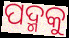
ପଦ୍ମକୁ